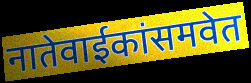
नातेवाईकांसमवेत